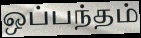
ஒப்பந்தம்